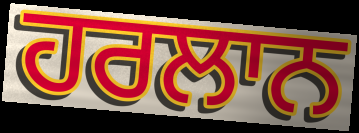
ਹਰਲਾਨ